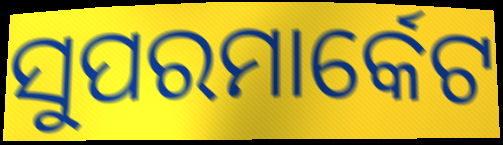
ସୁପରମାର୍କେଟ